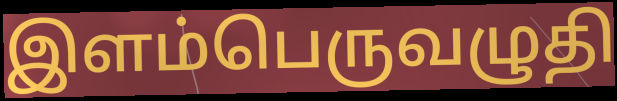
இளம்பெருவழுதி